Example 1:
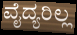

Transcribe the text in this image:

ವೈದ್ಯರಿಲ್ಲ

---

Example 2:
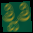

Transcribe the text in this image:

ತ್ವಿತಿ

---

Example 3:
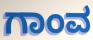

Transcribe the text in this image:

ಗಾಂವ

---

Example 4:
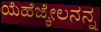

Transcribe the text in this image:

ಯೆಹೆಜ್ಕೇಲನನ್ನ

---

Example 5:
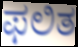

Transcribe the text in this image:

ಫಲಿತ